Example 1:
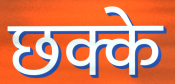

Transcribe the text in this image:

छक्के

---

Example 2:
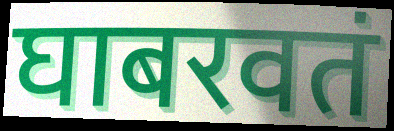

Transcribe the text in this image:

घाबरवतं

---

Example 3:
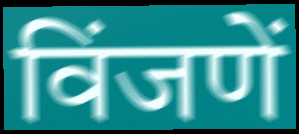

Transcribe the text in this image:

विंजणें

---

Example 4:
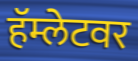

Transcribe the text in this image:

हॅम्लेटवर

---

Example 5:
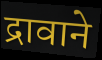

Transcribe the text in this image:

द्रावाने